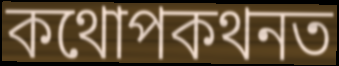
কথোপকথনত